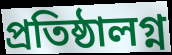
প্রতিষ্ঠালগ্ন